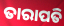
ତାରାପତି